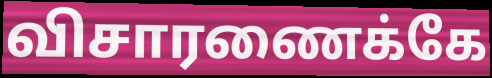
விசாரணைக்கே